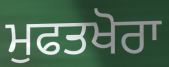
ਮੁਫਤਖੋਰਾ